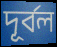
দূর্বল